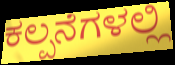
ಕಲ್ಪನೆಗಳಲ್ಲಿ